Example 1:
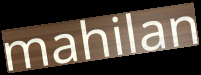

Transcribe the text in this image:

mahilan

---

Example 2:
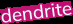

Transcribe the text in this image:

dendrite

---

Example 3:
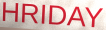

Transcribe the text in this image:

HRIDAY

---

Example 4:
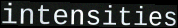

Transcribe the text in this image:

intensities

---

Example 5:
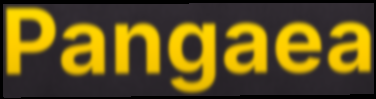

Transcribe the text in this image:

Pangaea